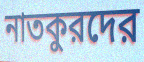
নাতকুরদের